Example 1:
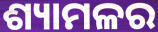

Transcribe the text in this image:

ଶ୍ୟାମଳର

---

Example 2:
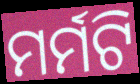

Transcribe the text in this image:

ମର୍ମଟି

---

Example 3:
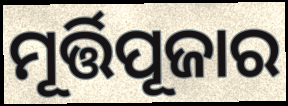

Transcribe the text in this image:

ମୂର୍ତ୍ତିପୂଜାର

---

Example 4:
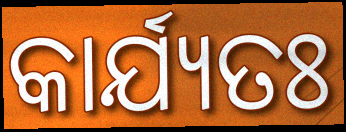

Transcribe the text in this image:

କାର୍ଯ୍ୟତଃ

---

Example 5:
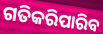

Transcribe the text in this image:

ଗତିକରିପାରିବ